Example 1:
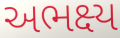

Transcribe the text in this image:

અભક્ષ્ય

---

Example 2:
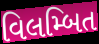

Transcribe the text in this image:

વિલમ્બિત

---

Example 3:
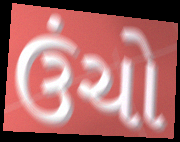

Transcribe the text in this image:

ઉંચો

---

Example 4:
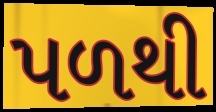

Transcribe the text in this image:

પળથી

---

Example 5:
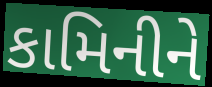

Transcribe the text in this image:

કામિનીને